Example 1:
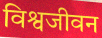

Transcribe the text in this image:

विश्वजीवन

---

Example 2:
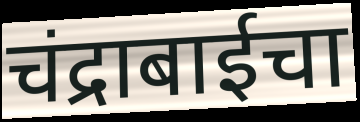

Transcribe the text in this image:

चंद्राबाईचा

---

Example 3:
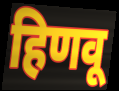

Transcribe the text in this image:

हिणवू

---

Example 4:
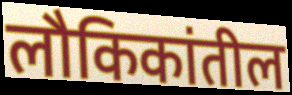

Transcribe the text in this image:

लौकिकांतील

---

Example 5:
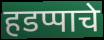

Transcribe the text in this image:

हडप्पाचे